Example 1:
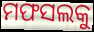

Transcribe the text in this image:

ମଫସଲକୁ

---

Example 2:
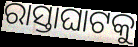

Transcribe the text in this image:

ରାସ୍ତାଘାଟକୁ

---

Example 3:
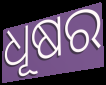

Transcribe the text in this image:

ଧୂଷର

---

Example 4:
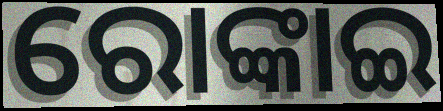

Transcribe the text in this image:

ରୋଙ୍କାଇ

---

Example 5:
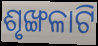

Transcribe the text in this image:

ଶୃଙ୍ଖଳାଟି